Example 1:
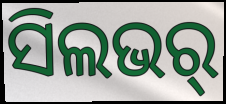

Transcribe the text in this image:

ସିଲଭର୍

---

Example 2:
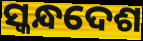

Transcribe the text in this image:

ସ୍କନ୍ଧଦେଶ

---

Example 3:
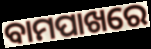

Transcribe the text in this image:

ବାମପାଖରେ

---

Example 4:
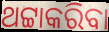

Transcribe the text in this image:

ଥଟ୍ଟାକରିବା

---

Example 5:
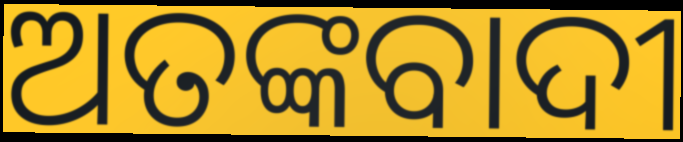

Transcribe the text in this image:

ଅତଙ୍କବାଦୀ